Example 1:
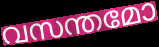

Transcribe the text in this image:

വസന്തമോ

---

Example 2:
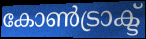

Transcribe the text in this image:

കോൺട്രാക്ട്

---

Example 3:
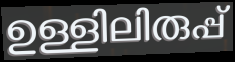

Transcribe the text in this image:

ഉള്ളിലിരുപ്പ്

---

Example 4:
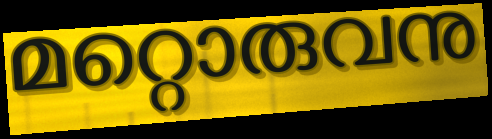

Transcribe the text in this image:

മറ്റൊരുവനു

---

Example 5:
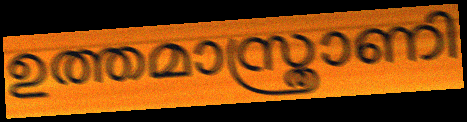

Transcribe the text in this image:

ഉത്തമാസ്ത്രാണി